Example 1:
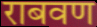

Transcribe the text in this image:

राबवण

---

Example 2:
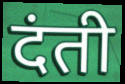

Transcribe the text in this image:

दंती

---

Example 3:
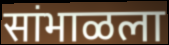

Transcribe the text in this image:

सांभाळला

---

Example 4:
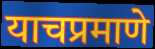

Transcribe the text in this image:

याचप्रमाणे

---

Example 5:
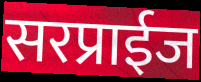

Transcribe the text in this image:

सरप्राईज